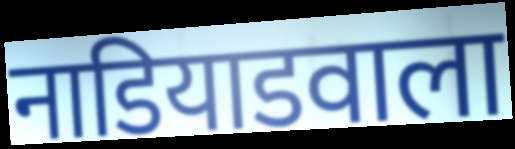
नाडियाडवाला